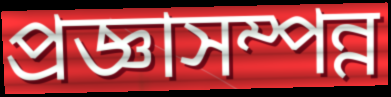
প্রজ্ঞাসম্পন্ন